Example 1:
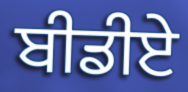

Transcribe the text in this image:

ਬੀਡੀਏ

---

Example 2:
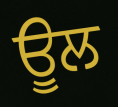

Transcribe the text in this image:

ਊਲ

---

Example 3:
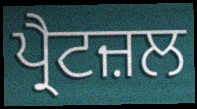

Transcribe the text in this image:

ਪ੍ਰੈਟਜ਼ਲ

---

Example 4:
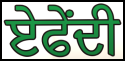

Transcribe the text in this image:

ਏਫੇਂਦੀ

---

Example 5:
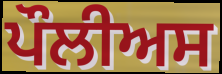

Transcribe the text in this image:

ਪੌਲੀਅਸ